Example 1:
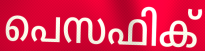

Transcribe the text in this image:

പെസഫിക്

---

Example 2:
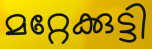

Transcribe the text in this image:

മറ്റേക്കുട്ടി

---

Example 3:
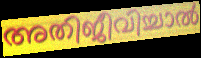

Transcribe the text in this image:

അതിജീവിച്ചാൽ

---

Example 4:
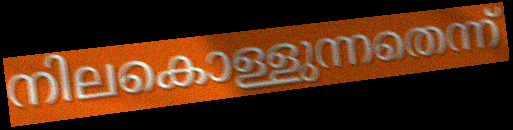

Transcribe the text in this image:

നിലകൊള്ളുന്നതെന്ന്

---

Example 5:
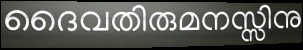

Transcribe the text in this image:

ദൈവതിരുമനസ്സിനു